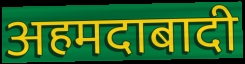
अहमदाबादी